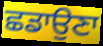
ਛਡਾਉਣਾ